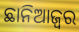
ଛାନିଆଜ୍ୱର